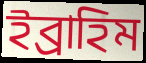
ইব্ৰাহিম